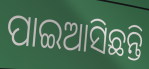
ପାଇଆସିଛନ୍ତି